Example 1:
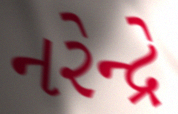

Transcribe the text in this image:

નરેન્દ્રે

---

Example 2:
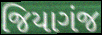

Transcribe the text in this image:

જિયાગંજ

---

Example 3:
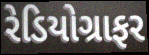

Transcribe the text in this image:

રેડિયોગ્રાફર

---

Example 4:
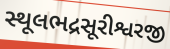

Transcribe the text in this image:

સ્થૂલભદ્રસૂરીશ્વરજી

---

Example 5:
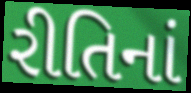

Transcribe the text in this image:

રીતિનાં